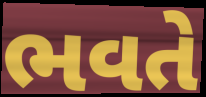
ભવતે